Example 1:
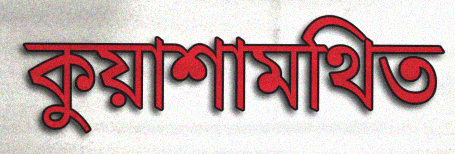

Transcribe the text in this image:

কুয়াশামথিত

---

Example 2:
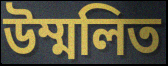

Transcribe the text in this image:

উম্মলিত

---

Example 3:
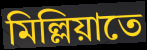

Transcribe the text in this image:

মিল্লিয়াতে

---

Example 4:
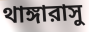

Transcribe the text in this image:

থাঙ্গারাসু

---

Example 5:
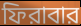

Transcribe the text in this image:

ফিরাবার